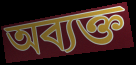
অব্যক্ত